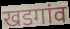
खडगांव